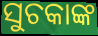
ସୁଚକାଙ୍କ